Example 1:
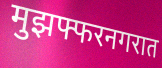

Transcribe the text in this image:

मुझफ्फरनगरात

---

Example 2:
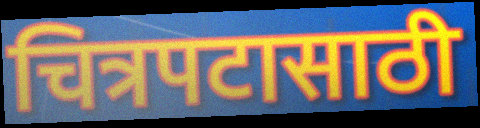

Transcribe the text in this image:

चित्रपटासाठी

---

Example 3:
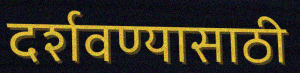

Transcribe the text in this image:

दर्शवण्यासाठी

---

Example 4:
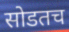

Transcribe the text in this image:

सोडतच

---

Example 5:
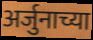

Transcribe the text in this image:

अर्जुनाच्या